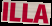
ILLA